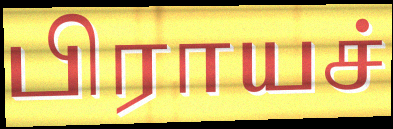
பிராயச்